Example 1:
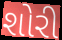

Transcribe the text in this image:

શોરી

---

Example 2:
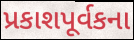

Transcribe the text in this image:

પ્રકાશપૂર્વકના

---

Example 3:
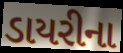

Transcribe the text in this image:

ડાયરીના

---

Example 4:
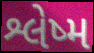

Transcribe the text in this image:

શ્લેષ્મ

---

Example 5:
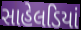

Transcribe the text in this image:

સાહેલડિયાં